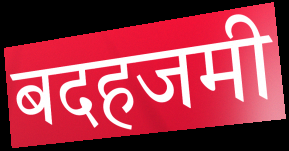
बदहजमी